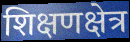
शिक्षणक्षेत्र